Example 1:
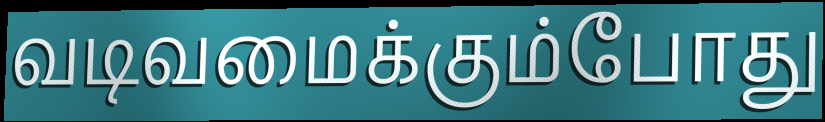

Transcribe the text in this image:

வடிவமைக்கும்போது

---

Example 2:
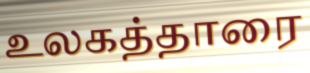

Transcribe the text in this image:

உலகத்தாரை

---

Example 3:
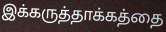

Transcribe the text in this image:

இக்கருத்தாக்கத்தை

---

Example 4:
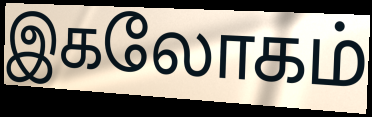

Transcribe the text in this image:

இகலோகம்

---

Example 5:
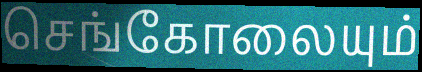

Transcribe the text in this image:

செங்கோலையும்